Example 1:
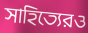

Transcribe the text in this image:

সাহিত্যেরও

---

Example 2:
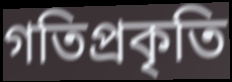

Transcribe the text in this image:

গতিপ্রকৃতি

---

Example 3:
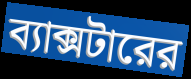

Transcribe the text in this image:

ব্যাক্সটারের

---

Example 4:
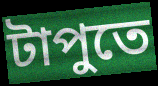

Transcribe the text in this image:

টাপুতে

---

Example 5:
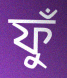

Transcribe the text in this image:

ফুঁ